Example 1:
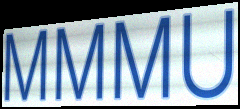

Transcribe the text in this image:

MMMU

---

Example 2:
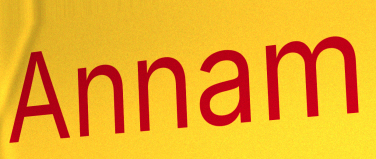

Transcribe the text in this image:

Annam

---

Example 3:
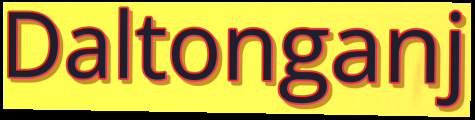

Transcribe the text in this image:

Daltonganj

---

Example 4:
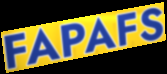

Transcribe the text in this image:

FAPAFS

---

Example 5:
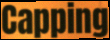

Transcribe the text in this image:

Capping